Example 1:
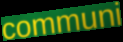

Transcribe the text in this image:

communi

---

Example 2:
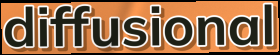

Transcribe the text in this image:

diffusional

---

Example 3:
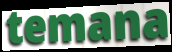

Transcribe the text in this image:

temana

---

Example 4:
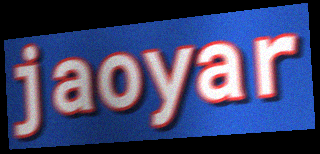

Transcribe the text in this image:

jaoyar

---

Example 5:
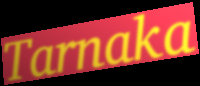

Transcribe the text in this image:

Tarnaka